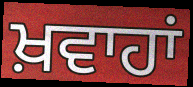
ਖ਼ਵਾਹਾਂ